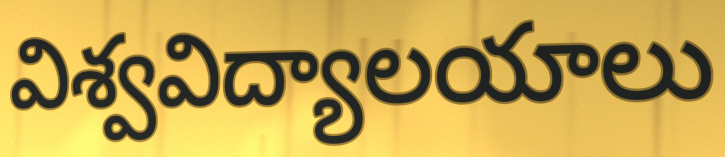
విశ్వవిద్యాలయాలు